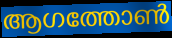
ആഗത്തോൺ